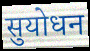
सुयोधन